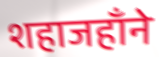
शहाजहाँने